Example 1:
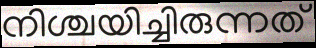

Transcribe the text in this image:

നിശ്ചയിച്ചിരുന്നത്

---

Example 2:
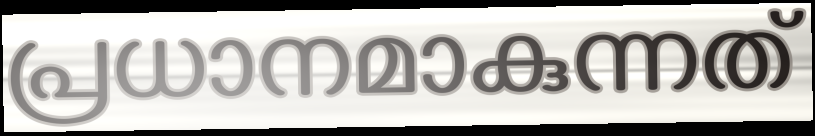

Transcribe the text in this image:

പ്രധാനമാകുന്നത്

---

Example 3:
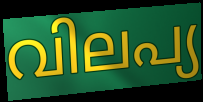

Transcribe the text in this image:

വിലപ്യ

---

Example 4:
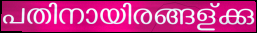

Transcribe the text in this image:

പതിനായിരങ്ങള്ക്കു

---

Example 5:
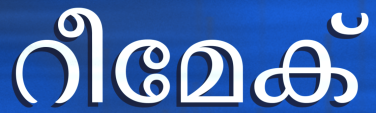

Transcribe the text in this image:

റീമേക്